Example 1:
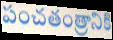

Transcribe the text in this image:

పంచతంత్రానికి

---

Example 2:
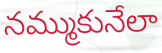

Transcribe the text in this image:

నమ్ముకునేలా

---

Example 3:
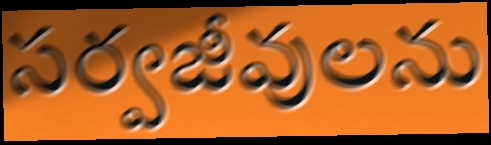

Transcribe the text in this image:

సర్వజీవులను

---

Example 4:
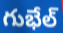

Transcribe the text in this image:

గుభేల్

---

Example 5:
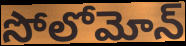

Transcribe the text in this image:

సోలోమోన్